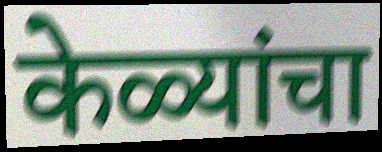
केळ्यांचा